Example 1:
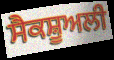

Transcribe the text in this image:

ਸੈਕਸ਼ੂਅਲੀ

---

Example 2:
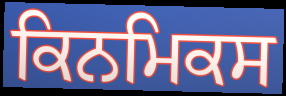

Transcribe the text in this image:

ਕਿਨਮਿਕਸ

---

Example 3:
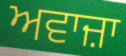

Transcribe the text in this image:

ਅਵਾਜ਼ਾ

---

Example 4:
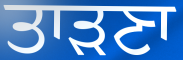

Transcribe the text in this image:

ਤਾੜਣਾ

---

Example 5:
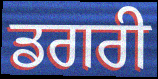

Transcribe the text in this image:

ਡਗਰੀ